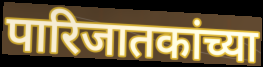
पारिजातकांच्या